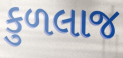
કુળલાજ